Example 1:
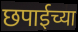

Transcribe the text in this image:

छपाईच्या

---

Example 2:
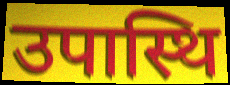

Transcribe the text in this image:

उपास्थि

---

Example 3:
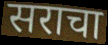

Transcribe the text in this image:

सराचा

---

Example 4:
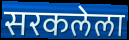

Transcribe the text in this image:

सरकलेला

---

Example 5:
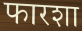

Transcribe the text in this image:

फारशा